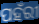
ପହଁରୀ